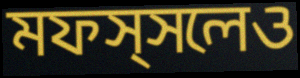
মফস্‌সলেও